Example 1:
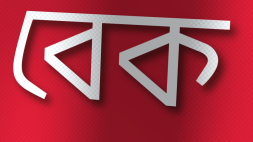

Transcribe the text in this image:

বেক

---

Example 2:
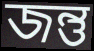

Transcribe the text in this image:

জন্তু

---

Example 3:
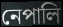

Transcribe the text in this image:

নেপালি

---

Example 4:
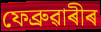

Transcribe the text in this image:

ফেব্ৰুৱাৰীৰ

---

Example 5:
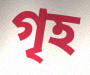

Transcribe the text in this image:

গৃহ